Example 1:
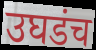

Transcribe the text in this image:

उघडंच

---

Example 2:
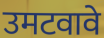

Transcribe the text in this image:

उमटवावे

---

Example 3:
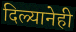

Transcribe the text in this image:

दिल्यानेही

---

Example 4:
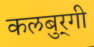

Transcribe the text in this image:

कलबुर्गी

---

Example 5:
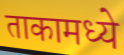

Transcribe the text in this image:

ताकामध्ये